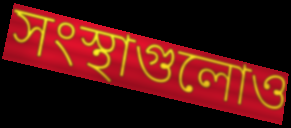
সংস্থাগুলোও